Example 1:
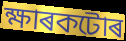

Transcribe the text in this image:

ক্ষাৰকটোৰ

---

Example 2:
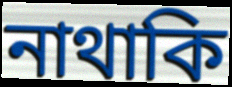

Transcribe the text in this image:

নাথাকি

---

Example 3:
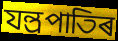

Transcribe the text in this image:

যন্ত্ৰপাতিৰ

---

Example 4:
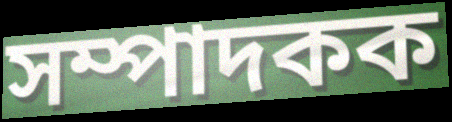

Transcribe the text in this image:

সম্পাদকক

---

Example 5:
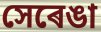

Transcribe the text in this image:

সেৰেঙা